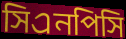
সিএনপিসি